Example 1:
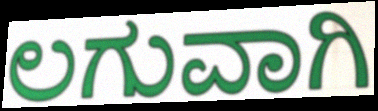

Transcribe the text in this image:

ಲಗುವಾಗಿ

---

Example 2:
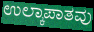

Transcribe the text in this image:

ಉಲ್ಕಾಪಾತವು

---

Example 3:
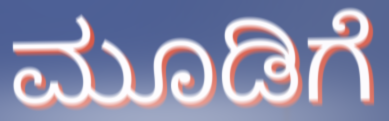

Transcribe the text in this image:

ಮೂಡಿಗೆ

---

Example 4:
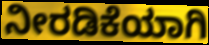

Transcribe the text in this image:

ನೀರಡಿಕೆಯಾಗಿ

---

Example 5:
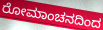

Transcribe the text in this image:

ರೋಮಾಂಚನದಿಂದ